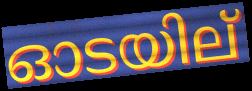
ഓടയില്